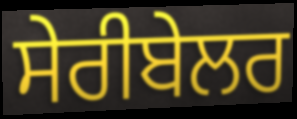
ਸੇਰੀਬੇਲਰ